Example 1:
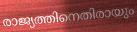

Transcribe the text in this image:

രാജ്യത്തിനെതിരായും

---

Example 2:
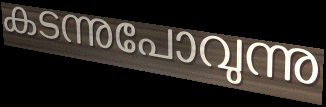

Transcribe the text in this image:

കടന്നുപോവുന്നു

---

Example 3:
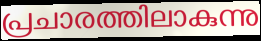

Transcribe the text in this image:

പ്രചാരത്തിലാകുന്നു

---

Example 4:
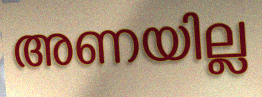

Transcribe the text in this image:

അണയില്ല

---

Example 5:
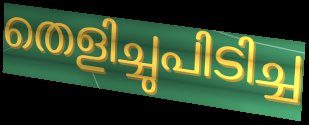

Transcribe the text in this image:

തെളിച്ചുപിടിച്ച